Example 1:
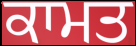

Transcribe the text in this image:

ਕਾਮਤ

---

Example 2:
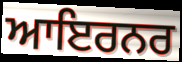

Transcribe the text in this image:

ਆਇਰਨਰ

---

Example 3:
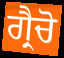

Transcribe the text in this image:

ਗ੍ਰੈਚੋ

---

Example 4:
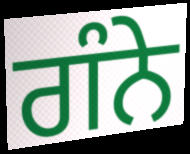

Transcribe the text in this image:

ਗੰਨੇ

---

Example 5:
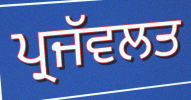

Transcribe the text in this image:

ਪ੍ਰਜੱਵਲਤ